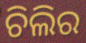
ଚିଲିର